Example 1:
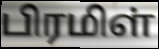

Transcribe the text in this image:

பிரமிள்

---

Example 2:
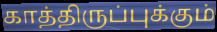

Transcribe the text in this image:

காத்திருப்புக்கும்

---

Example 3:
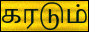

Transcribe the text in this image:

கரடும்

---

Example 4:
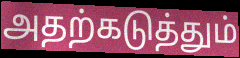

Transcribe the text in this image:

அதற்கடுத்தும்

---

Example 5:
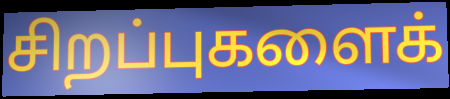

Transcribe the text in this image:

சிறப்புகளைக்